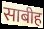
साबीह